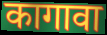
कागावा